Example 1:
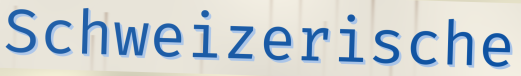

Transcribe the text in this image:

Schweizerische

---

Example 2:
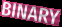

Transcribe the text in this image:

BINARY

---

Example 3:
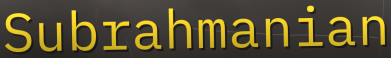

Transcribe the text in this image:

Subrahmanian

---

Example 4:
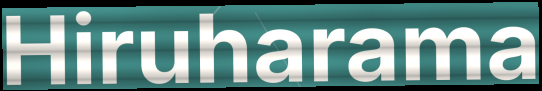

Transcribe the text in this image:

Hiruharama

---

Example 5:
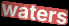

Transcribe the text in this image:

waters